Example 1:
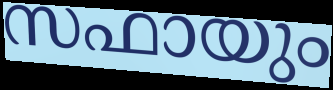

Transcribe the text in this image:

സഫായും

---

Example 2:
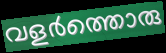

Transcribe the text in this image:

വളർത്തൊരു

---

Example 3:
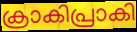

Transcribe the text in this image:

ക്രാകിപ്രാകി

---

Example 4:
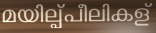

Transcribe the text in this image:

മയില്പ്പീലികള്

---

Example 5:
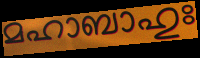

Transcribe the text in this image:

മഹാബാഹുഃ